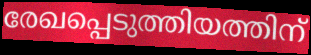
രേഖപ്പെടുത്തിയത്തിന്